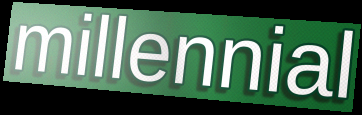
millennial